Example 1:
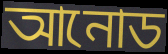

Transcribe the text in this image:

আনোড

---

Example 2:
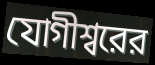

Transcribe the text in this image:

যোগীশ্বরের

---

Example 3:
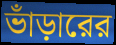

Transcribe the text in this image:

ভাঁড়ারের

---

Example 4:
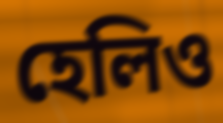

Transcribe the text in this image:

হেলিও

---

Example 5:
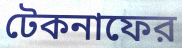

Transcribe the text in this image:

টেকনাফের